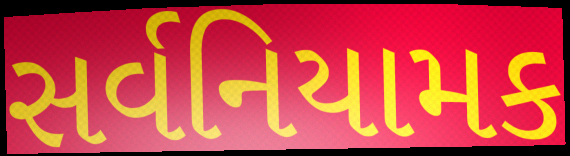
સર્વનિયામક